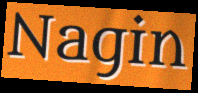
Nagin